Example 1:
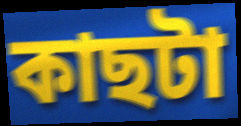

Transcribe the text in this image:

কাছটা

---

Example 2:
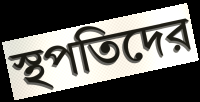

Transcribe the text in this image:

স্থপতিদের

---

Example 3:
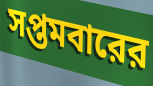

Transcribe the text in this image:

সপ্তমবারের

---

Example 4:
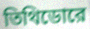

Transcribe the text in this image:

তিথিডোরে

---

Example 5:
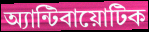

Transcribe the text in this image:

অ্যান্টিবায়োটিক